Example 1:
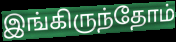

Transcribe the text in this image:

இங்கிருந்தோம்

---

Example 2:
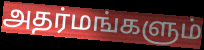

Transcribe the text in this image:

அதர்மங்களும்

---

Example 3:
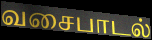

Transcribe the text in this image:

வசைபாடல்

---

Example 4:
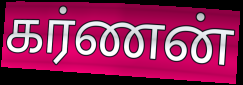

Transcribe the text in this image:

கர்ணன்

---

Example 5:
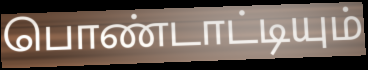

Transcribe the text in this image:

பொண்டாட்டியும்